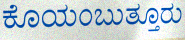
ಕೊಯಂಬುತ್ತೂರು